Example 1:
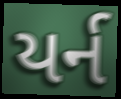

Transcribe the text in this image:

યર્ન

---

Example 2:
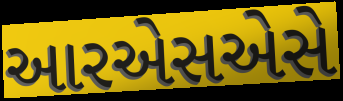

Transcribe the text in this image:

આરએસએસે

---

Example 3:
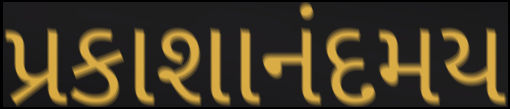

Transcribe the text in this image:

પ્રકાશાનંદમય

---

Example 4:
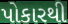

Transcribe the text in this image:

પોકારથી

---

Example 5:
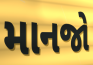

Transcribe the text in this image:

માનજો